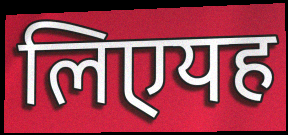
लिएयह